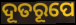
ଦୂତରୂପେ